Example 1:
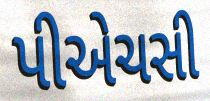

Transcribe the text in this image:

પીએચસી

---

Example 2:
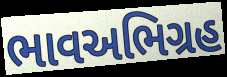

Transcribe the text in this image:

ભાવઅભિગ્રહ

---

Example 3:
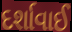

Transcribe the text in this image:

દર્શાવાઈ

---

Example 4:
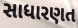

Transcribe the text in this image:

સાધારણત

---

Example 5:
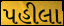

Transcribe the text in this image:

પહીલા